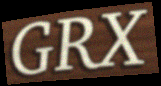
GRX